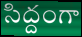
సిద్దంగా